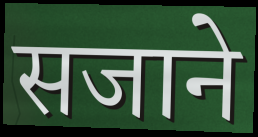
सजाने